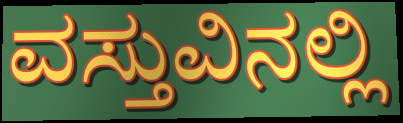
ವಸ್ತುವಿನಲ್ಲಿ